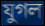
যুগল